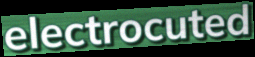
electrocuted